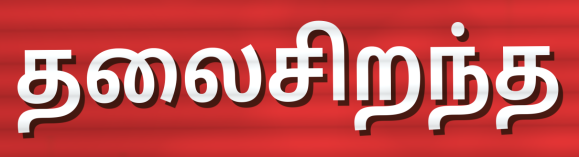
தலைசிறந்த